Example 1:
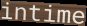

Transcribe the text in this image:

intime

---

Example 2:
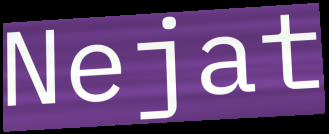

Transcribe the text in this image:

Nejat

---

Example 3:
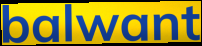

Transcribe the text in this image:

balwant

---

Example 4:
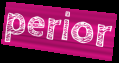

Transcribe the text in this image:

perior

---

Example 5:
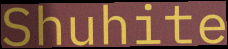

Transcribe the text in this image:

Shuhite